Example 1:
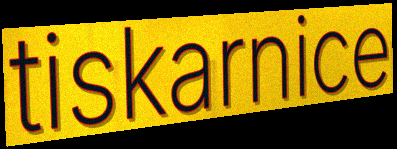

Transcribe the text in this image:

tiskarnice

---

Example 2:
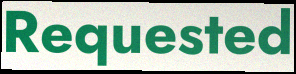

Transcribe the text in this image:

Requested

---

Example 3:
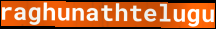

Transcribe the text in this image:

raghunathtelugu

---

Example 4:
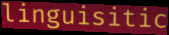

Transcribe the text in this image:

linguisitic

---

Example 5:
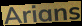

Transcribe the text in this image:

Arians